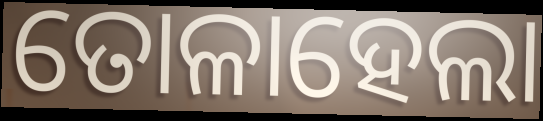
ତୋଳାହେଲା